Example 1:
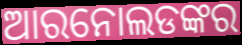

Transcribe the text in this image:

ଆରନୋଲଡଙ୍କର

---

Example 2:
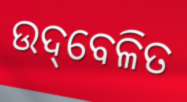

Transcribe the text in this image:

ଉଦ୍‌ବେଳିତ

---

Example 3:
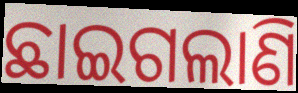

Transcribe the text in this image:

ଛାଇଗଲାଣି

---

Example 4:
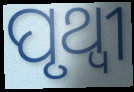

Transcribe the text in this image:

ପୃଥ୍ଵୀ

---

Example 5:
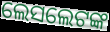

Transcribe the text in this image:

ଲେସଲେଟଙ୍କ